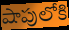
షాపులోకి